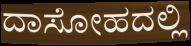
ದಾಸೋಹದಲ್ಲಿ